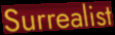
Surrealist